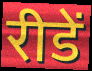
रीडें